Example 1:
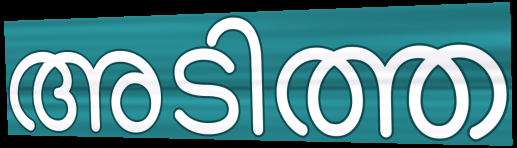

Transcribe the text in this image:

അടിത്ത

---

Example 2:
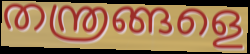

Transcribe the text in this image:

തന്ത്രങ്ങളെ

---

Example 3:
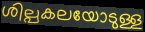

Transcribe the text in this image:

ശില്പകലയോടുള്ള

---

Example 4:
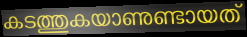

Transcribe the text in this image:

കടത്തുകയാണുണ്ടായത്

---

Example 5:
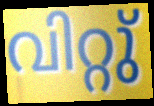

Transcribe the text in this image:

വിറ്റു്